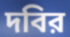
দবির